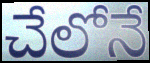
చేలోనే